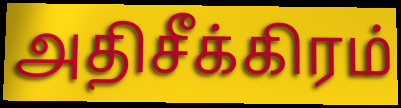
அதிசீக்கிரம்